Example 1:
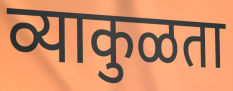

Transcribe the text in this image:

व्याकुळता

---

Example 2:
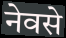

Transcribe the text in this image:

नेवसे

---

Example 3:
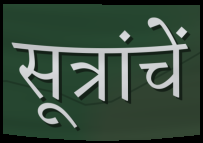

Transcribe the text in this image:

सूत्रांचें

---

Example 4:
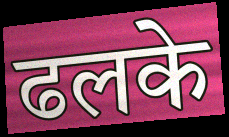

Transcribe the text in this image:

ढलके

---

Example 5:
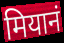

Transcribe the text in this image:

मियानं